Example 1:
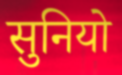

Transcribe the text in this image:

सुनियो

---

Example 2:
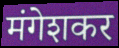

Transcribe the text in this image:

मंगेशकर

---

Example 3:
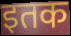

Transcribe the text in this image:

इतक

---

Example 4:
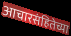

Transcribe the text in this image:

आचारसंहितेच्या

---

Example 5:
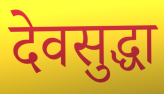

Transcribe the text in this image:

देवसुद्धा